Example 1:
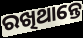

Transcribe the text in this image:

ରଖିଥାନ୍ତେ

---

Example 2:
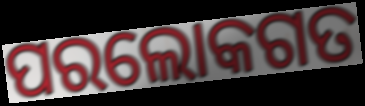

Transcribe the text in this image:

ପରଲୋକଗତ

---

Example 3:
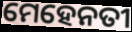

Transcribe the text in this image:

ମେହେନତୀ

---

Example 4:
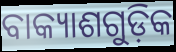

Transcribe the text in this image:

ବାକ୍ୟାଶଗୁଡ଼ିକ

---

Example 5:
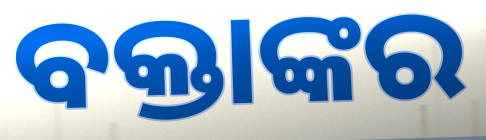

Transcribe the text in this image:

ବକ୍ତାଙ୍କର